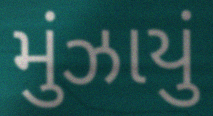
મુંઝાયું